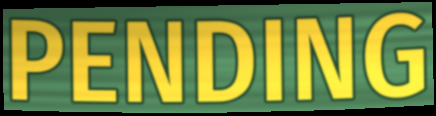
PENDING